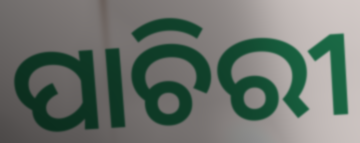
ପାଚିରୀ